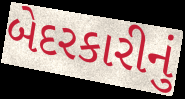
બેદરકારીનું